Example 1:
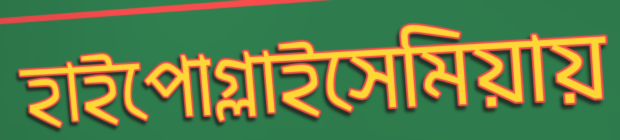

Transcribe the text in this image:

হাইপোগ্লাইসেমিয়ায়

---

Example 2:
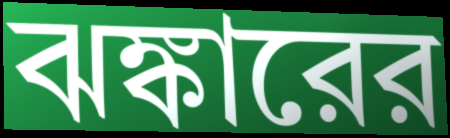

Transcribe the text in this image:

ঝঙ্কারের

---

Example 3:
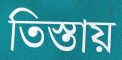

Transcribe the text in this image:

তিস্তায়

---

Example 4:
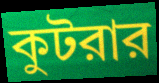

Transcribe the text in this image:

কুটরার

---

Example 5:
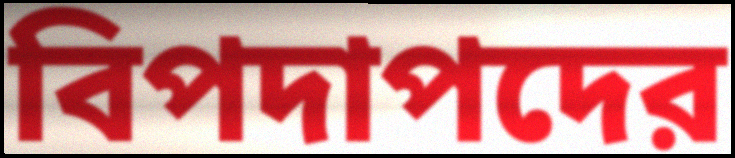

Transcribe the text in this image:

বিপদাপদের